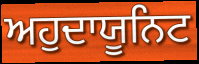
ਅਹੁਦਾਯੂਨਿਟ